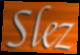
Slez